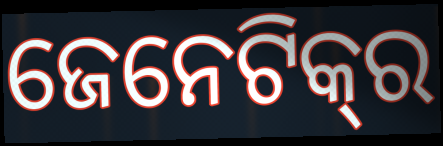
ଜେନେଟିକ୍‌ର